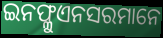
ଇନଫ୍ଳୁଏନସରମାନେ